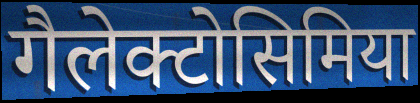
गैलेक्टोसिमिया